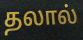
தலால்